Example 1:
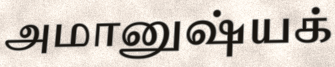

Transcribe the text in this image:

அமானுஷ்யக்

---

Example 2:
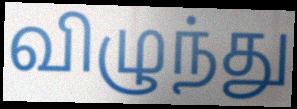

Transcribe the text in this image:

விழுந்து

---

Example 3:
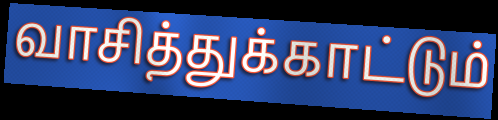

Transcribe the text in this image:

வாசித்துக்காட்டும்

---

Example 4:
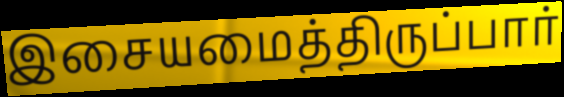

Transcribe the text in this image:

இசையமைத்திருப்பார்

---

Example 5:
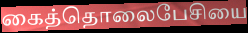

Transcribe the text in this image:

கைத்தொலைபேசியை